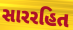
સારરહિત